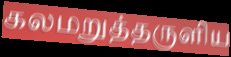
கலமறுத்தருளிய